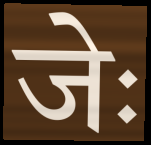
जेः